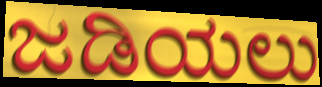
ಜಡಿಯಲು